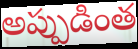
అప్పుడింత